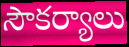
సౌకర్యాలు